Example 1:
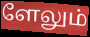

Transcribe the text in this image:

ளேலும்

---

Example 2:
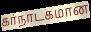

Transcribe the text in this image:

கர்நாடகமான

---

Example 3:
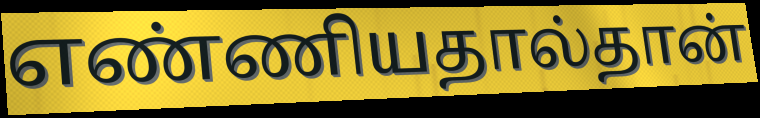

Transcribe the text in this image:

எண்ணியதால்தான்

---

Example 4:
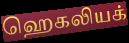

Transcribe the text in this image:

ஹெகலியக்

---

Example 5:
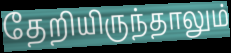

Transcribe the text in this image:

தேறியிருந்தாலும்